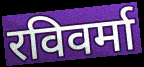
रविवर्मा